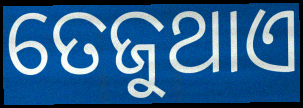
ତେଜୁଥାଏ